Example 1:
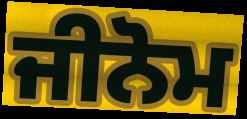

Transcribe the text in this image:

ਜੀਨੋਮ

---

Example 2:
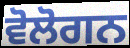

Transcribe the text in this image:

ਵੋਲੋਗਨ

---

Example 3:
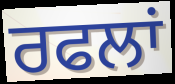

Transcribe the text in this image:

ਰਫਲਾਂ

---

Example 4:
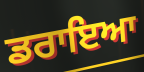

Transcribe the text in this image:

ਡਰਾਇਆ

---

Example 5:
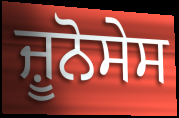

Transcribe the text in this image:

ਜ਼ੂਨੋਸੇਸ